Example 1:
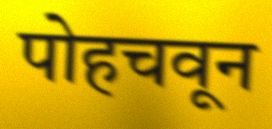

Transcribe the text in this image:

पोहचवून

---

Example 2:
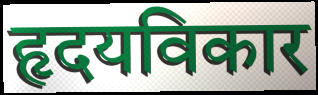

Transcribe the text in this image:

हृदयविकार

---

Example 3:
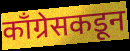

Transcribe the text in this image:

काँग्रेसकडून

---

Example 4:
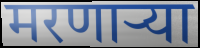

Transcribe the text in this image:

मरणार्‍या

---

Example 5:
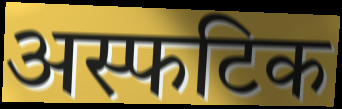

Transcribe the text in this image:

अस्फटिक